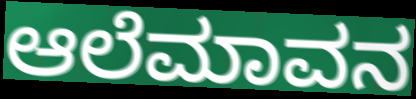
ಆಲೆಮಾವನ